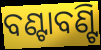
ବଣ୍ଟାବଣ୍ଟି